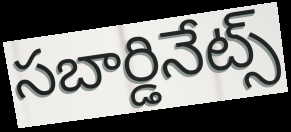
సబార్డినేట్స్